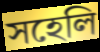
সহেলি